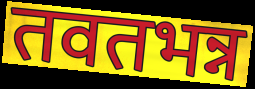
तवतभन्न